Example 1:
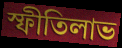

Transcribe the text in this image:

স্ফীতিলাভ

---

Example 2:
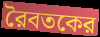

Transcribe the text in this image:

রৈবতকের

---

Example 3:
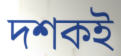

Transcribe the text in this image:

দশকই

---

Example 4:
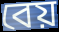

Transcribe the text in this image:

বেয়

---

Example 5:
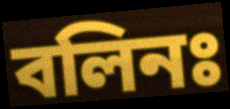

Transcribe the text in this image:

বলিনঃ